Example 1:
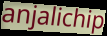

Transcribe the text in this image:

anjalichip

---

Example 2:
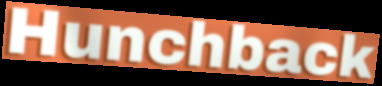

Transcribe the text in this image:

Hunchback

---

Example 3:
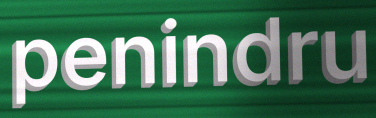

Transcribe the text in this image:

penindru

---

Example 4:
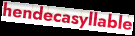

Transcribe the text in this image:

hendecasyllable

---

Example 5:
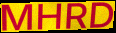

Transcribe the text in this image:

MHRD